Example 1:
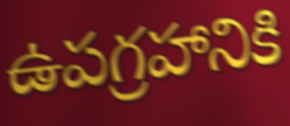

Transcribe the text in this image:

ఉపగ్రహానికి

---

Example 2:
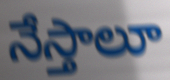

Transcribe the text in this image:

నేస్తాలూ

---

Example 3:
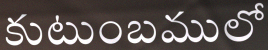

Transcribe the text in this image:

కుటుంబములో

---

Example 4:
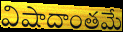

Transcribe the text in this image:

విషాదాంతమే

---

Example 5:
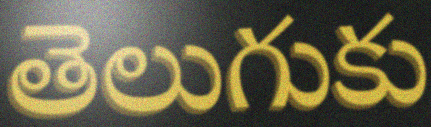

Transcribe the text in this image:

తెలుగుకు